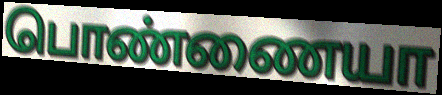
பொண்ணையா